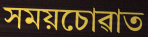
সময়চোৱাত